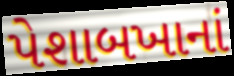
પેશાબખાનાં